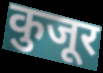
कुजूर